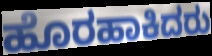
ಹೊರಹಾಕಿದರು